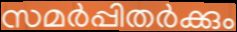
സമർപ്പിതർക്കും